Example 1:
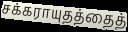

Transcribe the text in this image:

சக்கராயுதத்தைத்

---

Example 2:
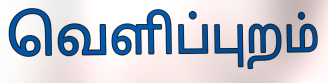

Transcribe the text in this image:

வெளிப்புறம்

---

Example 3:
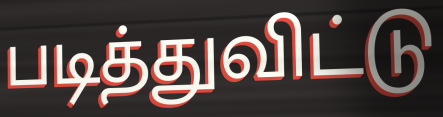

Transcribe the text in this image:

படித்துவிட்டு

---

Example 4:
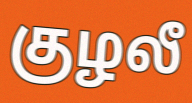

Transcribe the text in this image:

குழலீ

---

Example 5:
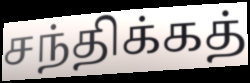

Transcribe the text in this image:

சந்திக்கத்